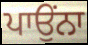
ਪਾਉਂਨਾ